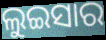
ଲୁଇସାର